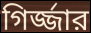
গির্জ্জার